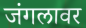
जंगलावर